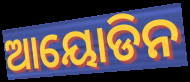
ଆୟୋଡିନ